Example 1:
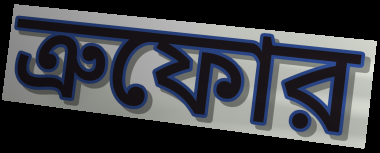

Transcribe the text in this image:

ত্রুফোর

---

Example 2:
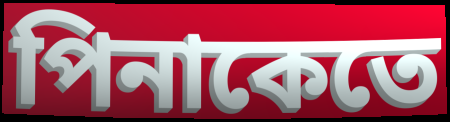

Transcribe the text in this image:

পিনাকেতে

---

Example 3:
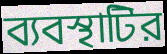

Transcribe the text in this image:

ব্যবস্থাটির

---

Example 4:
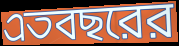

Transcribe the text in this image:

এতবছরের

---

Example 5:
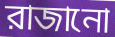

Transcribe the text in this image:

রাজানো